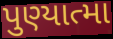
પુણ્યાત્મા